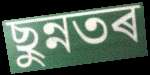
ছুন্নতৰ